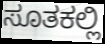
ಸೂತಕಲ್ಲಿ